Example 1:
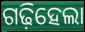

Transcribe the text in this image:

ଗଢ଼ିହେଲା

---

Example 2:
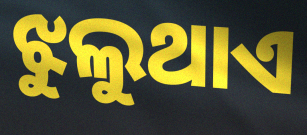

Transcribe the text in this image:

ଝୁଲୁଥାଏ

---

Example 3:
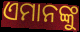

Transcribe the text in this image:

ଏମାନଙ୍କୁ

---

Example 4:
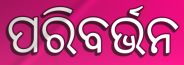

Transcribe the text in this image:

ପରିବର୍ଭନ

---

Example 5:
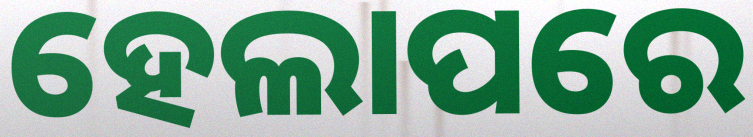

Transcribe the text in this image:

ହେଲାପରେ